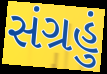
સંગ્રહું